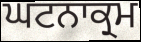
ਘਟਨਾਕ੍ਰਮ